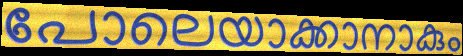
പോലെയാക്കാനാകും